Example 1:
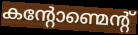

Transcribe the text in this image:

കന്റോണ്മെന്റ്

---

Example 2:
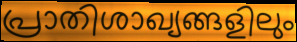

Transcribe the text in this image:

പ്രാതിശാഖ്യങ്ങളിലും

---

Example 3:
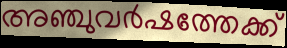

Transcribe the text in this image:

അഞ്ചുവർഷത്തേക്ക്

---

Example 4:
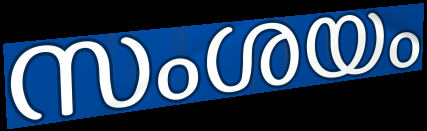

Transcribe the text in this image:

സംശയം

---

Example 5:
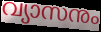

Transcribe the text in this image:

വ്യാസനും